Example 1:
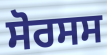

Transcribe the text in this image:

ਸੋਰਸਸ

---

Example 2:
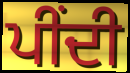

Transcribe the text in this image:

ਪੀਂਦੀ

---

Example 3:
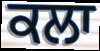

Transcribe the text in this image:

ਕਲਾ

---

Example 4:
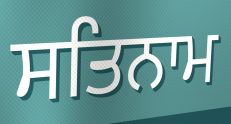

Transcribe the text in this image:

ਸਤਿਨਾਮ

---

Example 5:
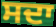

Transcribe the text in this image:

ਸਦਾ